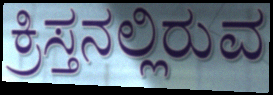
ಕ್ರಿಸ್ತನಲ್ಲಿರುವ